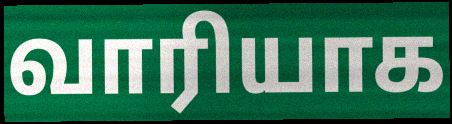
வாரியாக